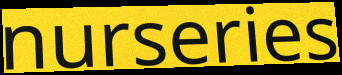
nurseries